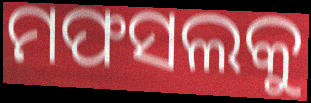
ମଫସଲକୁ